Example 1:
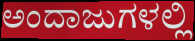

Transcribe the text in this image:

ಅಂದಾಜುಗಳಲ್ಲಿ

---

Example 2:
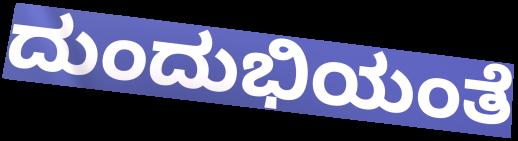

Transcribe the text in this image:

ದುಂದುಭಿಯಂತೆ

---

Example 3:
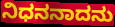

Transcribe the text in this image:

ನಿಧನನಾದನು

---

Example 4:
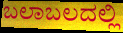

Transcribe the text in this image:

ಬಲಾಬಲದಲ್ಲಿ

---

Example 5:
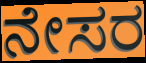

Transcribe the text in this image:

ನೇಸರ